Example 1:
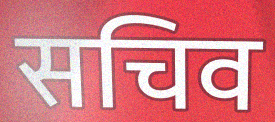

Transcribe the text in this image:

सचिव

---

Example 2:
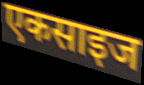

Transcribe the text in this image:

एकसाइज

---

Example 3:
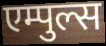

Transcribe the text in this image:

एम्पुल्स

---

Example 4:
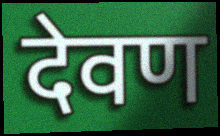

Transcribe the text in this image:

देवण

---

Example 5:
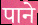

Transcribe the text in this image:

पाने